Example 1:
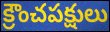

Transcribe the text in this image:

క్రౌంచపక్షులు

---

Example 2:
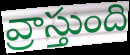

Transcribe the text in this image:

వ్రాస్తుంది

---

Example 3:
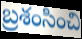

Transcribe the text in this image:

బ్రశంసించి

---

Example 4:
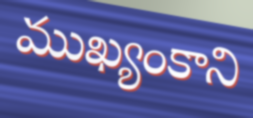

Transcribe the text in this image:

ముఖ్యంకాని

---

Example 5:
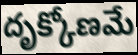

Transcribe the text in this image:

దృక్కోణమే